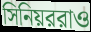
সিনিয়ররাও